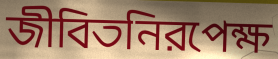
জীবিতনিরপেক্ষ